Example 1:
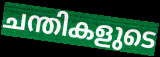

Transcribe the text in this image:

ചന്തികളുടെ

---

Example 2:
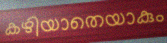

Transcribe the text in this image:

കഴിയാതെയാകും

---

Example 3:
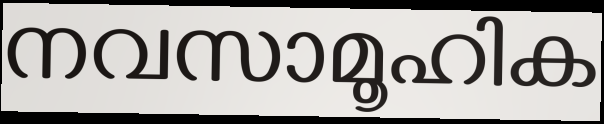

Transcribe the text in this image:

നവസാമൂഹിക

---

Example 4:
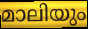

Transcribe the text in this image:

മാലിയും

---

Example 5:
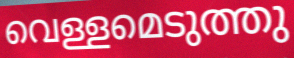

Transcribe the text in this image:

വെള്ളമെടുത്തു